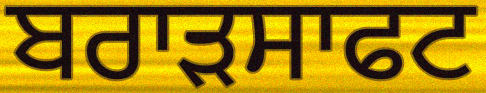
ਬਰਾੜਸਾਫਟ